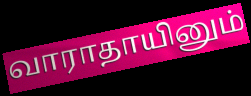
வாராதாயினும்